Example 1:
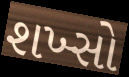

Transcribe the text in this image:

શખ્સો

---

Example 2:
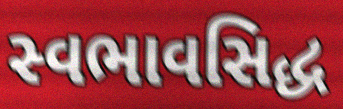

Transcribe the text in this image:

સ્વભાવસિદ્ધ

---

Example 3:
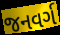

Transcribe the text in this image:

જનવર્ગ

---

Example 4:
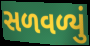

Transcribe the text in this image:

સળવળ્યું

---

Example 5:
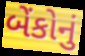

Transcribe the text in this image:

બેંકોનું